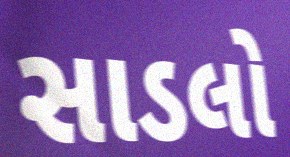
સાડલો